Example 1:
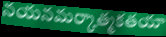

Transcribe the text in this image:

నయనమర్కాత్మకతయా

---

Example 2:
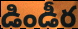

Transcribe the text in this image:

డిండీర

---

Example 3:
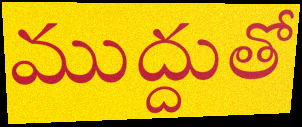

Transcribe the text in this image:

ముద్దుతో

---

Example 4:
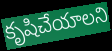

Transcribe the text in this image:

కృషిచేయాలని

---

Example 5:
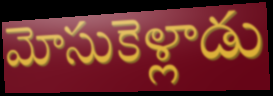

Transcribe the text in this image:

మోసుకెళ్లాడు